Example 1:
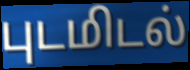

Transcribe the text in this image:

புடமிடல்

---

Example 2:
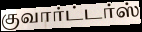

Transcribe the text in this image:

குவார்ட்டர்ஸ்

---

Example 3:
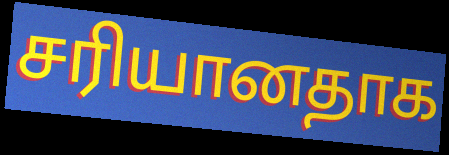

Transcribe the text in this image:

சரியானதாக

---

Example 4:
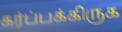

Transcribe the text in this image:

கர்ப்பக்கிருக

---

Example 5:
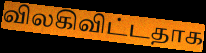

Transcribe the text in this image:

விலகிவிட்டதாக